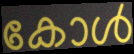
കോൾ